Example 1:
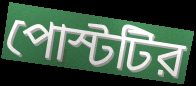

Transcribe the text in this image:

পোস্টটির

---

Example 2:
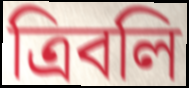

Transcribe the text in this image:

ত্রিবলি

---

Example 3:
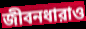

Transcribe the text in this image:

জীবনধারাও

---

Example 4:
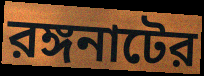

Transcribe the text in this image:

রঙ্গনাটের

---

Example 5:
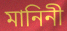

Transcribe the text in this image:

মানিনী